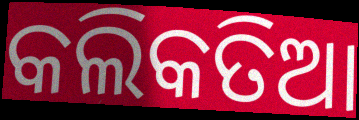
କଲିକତିଆ